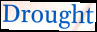
Drought